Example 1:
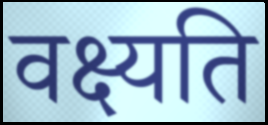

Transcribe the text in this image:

वक्ष्यति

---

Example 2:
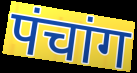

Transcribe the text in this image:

पंचांग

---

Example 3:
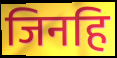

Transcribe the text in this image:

जिनहि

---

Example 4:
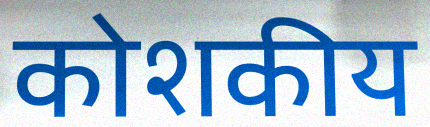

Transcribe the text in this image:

कोशकीय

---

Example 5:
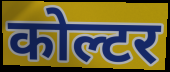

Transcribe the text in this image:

कोल्टर